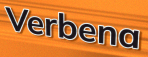
Verbena